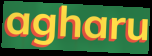
agharu